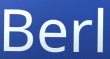
Berl